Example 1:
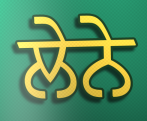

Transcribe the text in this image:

ਲੇਨੇ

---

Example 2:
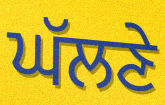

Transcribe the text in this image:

ਘੱਲਣੇ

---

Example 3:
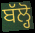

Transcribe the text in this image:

ਬੱਲ੍ਹੋ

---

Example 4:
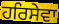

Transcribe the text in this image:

ਹਰਿਸੇਵਾ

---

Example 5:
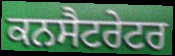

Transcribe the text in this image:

ਕਨਸੈਟਰੇਟਰ